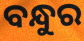
ବନ୍ଧୁର